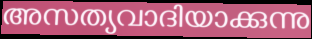
അസത്യവാദിയാക്കുന്നു